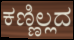
ಕಣ್ಣಿಲ್ಲದ